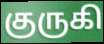
குருகி